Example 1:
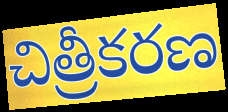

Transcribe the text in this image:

చిత్రీకరణ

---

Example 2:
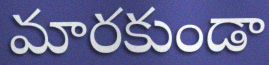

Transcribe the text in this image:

మారకుండా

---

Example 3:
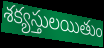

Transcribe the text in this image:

శక్యస్తులయితుం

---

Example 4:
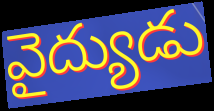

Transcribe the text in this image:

వైద్యుడు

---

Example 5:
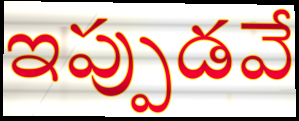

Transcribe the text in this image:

ఇప్పుడవే